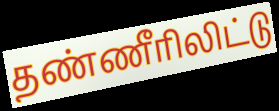
தண்ணீரிலிட்டு